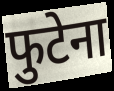
फुटेना